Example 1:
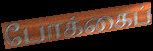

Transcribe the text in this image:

போக்கைப்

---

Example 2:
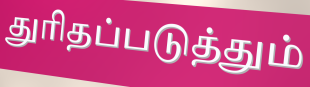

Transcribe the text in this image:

துரிதப்படுத்தும்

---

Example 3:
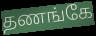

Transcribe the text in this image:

தணங்கே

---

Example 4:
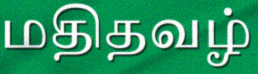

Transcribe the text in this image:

மதிதவழ்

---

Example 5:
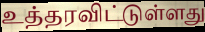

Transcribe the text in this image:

உத்தரவிட்டுள்ளது